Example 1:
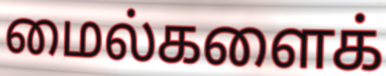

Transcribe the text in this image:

மைல்களைக்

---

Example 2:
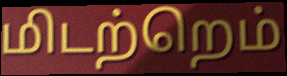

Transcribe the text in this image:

மிடற்றெம்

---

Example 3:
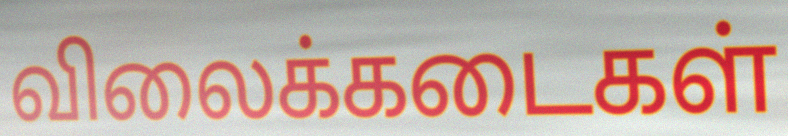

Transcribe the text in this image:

விலைக்கடைகள்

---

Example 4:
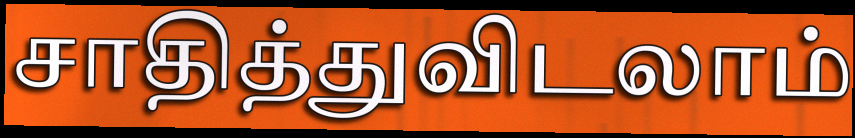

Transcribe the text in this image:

சாதித்துவிடலாம்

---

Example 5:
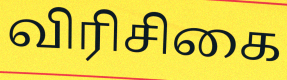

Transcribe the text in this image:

விரிசிகை